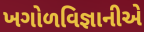
ખગોળવિજ્ઞાનીએ